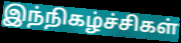
இந்நிகழ்ச்சிகள்